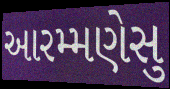
આરમ્મણેસુ